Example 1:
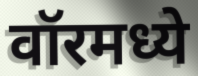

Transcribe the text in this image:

वॉरमध्ये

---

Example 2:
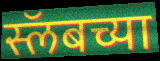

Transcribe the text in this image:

स्लॅबच्या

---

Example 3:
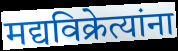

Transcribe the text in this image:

मद्यविक्रेत्यांना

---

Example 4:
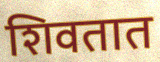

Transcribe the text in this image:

शिवतात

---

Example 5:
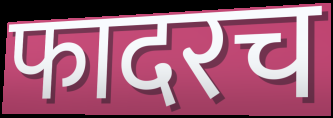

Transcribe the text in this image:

फादरच